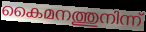
കൈമനത്തുനിന്ന്